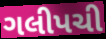
ગલીપચી